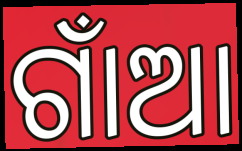
ଗାଁଆ